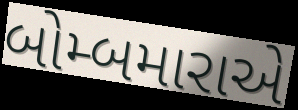
બોમ્બમારાએ